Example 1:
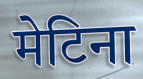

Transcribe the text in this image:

मेटिना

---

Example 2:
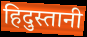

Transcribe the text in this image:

हिदुस्तानी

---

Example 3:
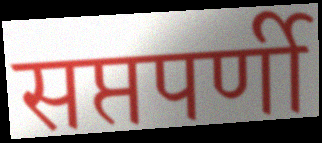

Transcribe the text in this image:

सप्तपर्णी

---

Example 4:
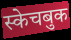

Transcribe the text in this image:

स्केचबुक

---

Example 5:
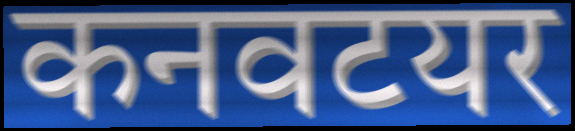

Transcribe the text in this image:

कनवटयर